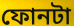
ফোনটা